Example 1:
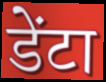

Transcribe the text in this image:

डेंटा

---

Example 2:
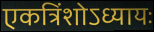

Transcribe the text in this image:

एकत्रिंशोऽध्यायः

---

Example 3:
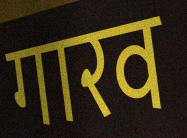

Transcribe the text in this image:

गारव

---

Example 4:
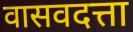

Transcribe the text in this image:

वासवदत्ता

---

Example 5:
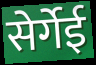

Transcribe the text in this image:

सेर्गेई